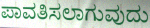
ಪಾವತಿಸಲಾಗುವುದು